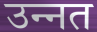
उन्‍नत